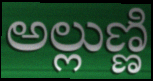
అల్లుణ్ణి